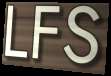
LFS